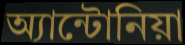
অ্যান্টোনিয়া